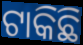
ଟାକିଛି